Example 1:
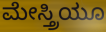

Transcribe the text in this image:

ಮೇಸ್ತ್ರಿಯೂ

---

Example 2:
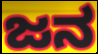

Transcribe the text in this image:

ಜನ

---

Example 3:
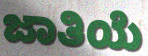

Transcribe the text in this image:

ಜಾತಿಯೆ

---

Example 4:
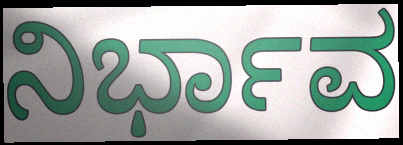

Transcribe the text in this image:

ನಿರ್ಭಾವ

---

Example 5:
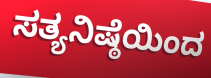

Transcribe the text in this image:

ಸತ್ಯನಿಷ್ಠೆಯಿಂದ